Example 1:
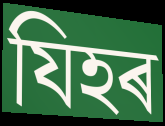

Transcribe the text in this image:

যিহৰ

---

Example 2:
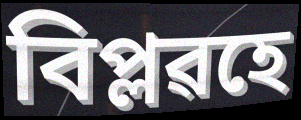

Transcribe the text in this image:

বিপ্লৱহে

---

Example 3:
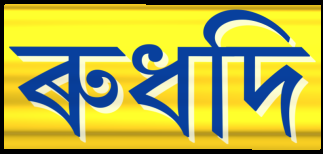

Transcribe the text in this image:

ৰুধদি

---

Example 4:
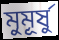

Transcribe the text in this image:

মুমূৰ্ষু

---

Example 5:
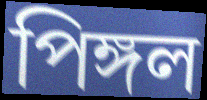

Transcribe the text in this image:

পিঙ্গল